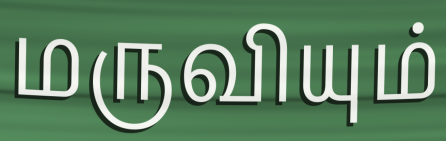
மருவியும்